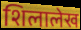
शिलालेख